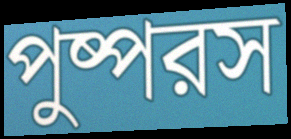
পুষ্পরস